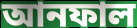
আনফাল